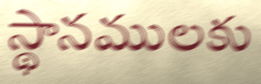
స్థానములకు